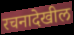
रचनादेखील